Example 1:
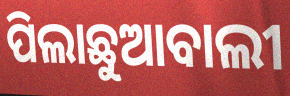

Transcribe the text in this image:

ପିଲାଛୁଆବାଲୀ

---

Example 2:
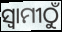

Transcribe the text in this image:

ସ୍ୱାମୀଠୁଁ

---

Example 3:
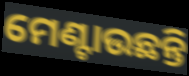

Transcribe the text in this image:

ମେଣ୍ଟାଉଛନ୍ତି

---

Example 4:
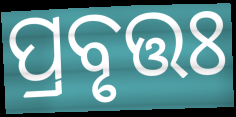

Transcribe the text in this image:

ପ୍ରବୃତ୍ତଃ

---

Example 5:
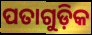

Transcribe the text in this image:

ପତାଗୁଡ଼ିକ